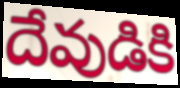
దేవుడికి